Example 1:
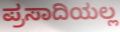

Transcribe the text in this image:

ಪ್ರಸಾದಿಯಲ್ಲ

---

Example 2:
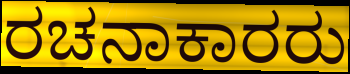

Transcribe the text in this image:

ರಚನಾಕಾರರು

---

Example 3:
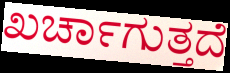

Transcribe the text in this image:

ಖರ್ಚಾಗುತ್ತದೆ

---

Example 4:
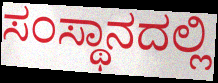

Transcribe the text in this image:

ಸಂಸ್ಥಾನದಲ್ಲಿ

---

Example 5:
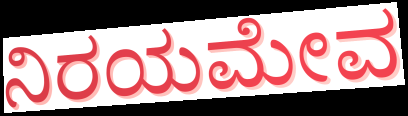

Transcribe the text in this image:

ನಿರಯಮೇವ